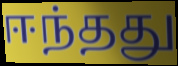
ஈந்தது